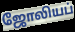
ஜோலியப்